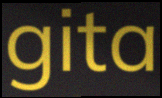
gita